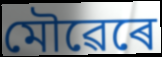
মৌৱেৰে